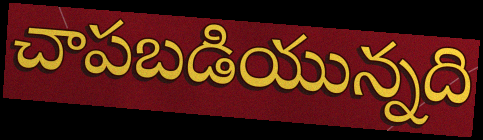
చాపబడియున్నది